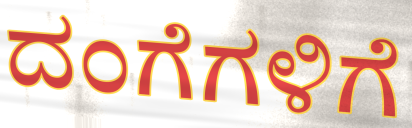
ದಂಗೆಗಳಿಗೆ